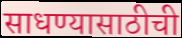
साधण्यासाठीची